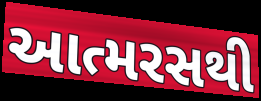
આત્મરસથી